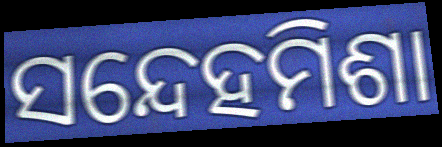
ସନ୍ଦେହମିଶା